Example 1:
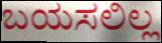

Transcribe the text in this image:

ಬಯಸಲಿಲ್ಲ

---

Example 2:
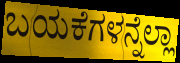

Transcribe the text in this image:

ಬಯಕೆಗಳನ್ನೆಲ್ಲಾ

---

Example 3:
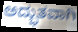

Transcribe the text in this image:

ಅದ್ಭುತವಾಗಿ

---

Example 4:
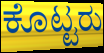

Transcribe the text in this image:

ಕೊಟ್ಟರು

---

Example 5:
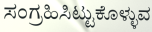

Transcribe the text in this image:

ಸಂಗ್ರಹಿಸಿಟ್ಟುಕೊಳ್ಳುವ